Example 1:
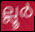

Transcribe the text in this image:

ല്ലൂർ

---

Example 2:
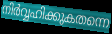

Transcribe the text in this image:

നിർവ്വഹിക്കുകതന്നെ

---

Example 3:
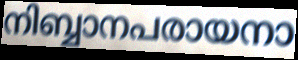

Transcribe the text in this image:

നിബ്ബാനപരായനാ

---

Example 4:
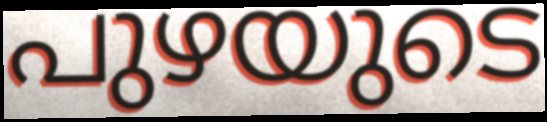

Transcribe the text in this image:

പുഴയുടെ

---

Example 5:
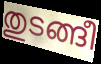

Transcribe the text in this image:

തുടങ്ങീ